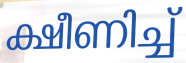
ക്ഷീണിച്ച്